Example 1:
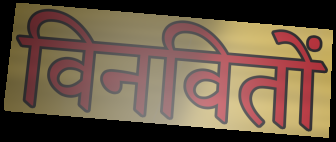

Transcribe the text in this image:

विनवितों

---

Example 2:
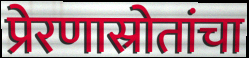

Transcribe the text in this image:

प्रेरणास्रोतांचा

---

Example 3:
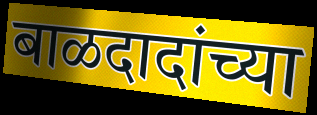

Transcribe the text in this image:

बाळदादांच्या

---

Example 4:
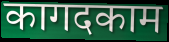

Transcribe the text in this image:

कागदकाम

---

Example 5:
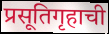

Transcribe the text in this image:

प्रसूतिगृहाची